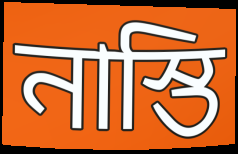
নাস্তি